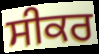
ਸੀਕਰ